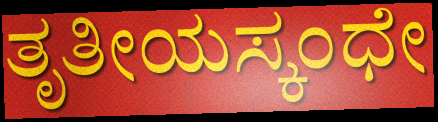
ತೃತೀಯಸ್ಕಂಧೇ